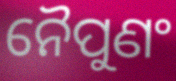
ନୈପୁଣଂ